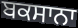
ਬਕਸਾਨਾ